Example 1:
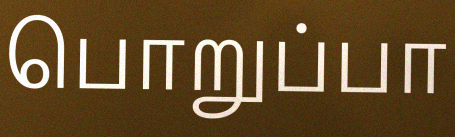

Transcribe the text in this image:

பொறுப்பா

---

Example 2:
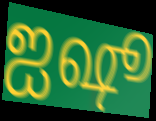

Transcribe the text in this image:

ஐஷூ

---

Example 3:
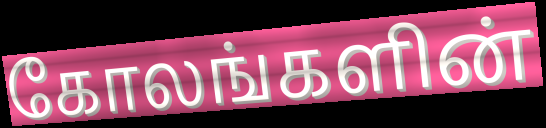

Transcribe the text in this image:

கோலங்களின்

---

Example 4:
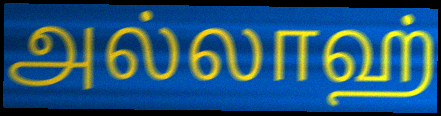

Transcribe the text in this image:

அல்லாஹ்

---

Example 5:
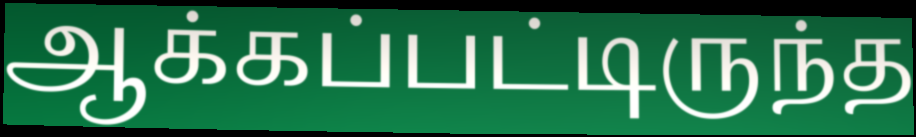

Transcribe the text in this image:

ஆக்கப்பட்டிருந்த